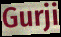
Gurji